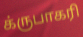
க்ருபாகரி